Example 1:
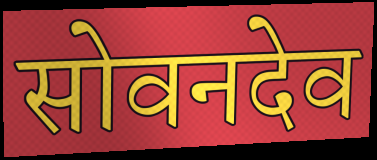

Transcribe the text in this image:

सोवनदेव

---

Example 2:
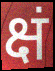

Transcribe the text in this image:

क्षं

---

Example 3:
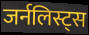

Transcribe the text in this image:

जर्नलिस्ट्स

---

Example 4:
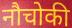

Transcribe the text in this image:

नौचोकी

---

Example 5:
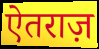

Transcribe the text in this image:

ऐतराज़